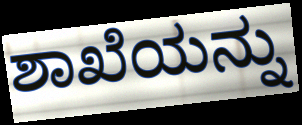
ಶಾಖೆಯನ್ನು